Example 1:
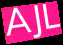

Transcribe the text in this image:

AJL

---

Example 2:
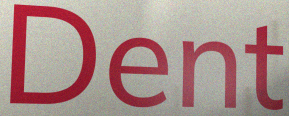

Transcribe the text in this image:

Dent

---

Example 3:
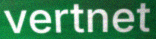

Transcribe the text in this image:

vertnet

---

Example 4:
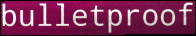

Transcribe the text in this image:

bulletproof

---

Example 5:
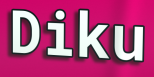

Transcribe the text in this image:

Diku